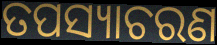
ତପସ୍ୟାଚରଣ